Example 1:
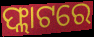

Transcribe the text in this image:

ଫ୍ଲାଟରେ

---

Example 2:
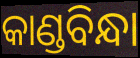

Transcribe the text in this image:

କାଣ୍ଡବିନ୍ଧା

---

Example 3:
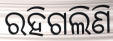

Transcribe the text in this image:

ରହିଗଲିଣି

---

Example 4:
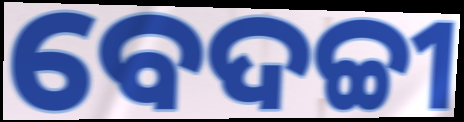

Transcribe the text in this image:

ବେଦଚ୍ଚୀ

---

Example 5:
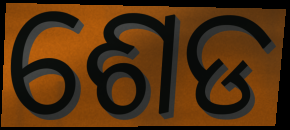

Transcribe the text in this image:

ଶେଡ